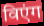
विएंग